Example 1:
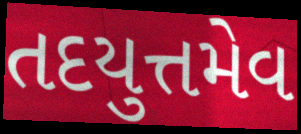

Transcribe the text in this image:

તદયુત્તમેવ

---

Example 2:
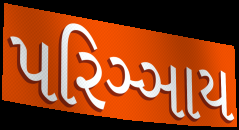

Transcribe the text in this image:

પરિઞ્ઞાય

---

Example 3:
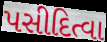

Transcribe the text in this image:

પસીદિત્વા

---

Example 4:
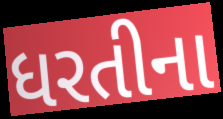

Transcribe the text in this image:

ધરતીના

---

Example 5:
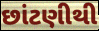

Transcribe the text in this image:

છાંટણીથી